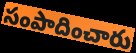
సంపాదించారు